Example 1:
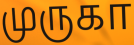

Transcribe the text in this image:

முருகா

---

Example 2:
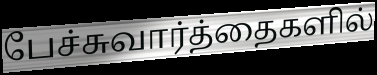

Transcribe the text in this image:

பேச்சுவார்த்தைகளில்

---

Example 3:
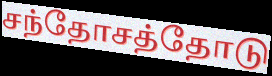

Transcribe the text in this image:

சந்தோசத்தோடு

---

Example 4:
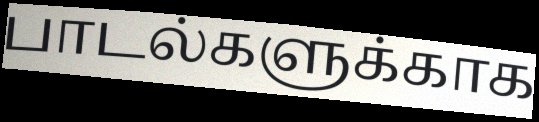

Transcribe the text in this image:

பாடல்களுக்காக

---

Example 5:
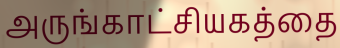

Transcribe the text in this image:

அருங்காட்சியகத்தை